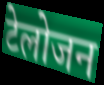
टेलोजन